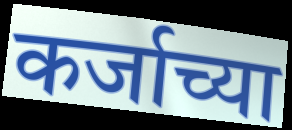
कर्जाच्या